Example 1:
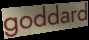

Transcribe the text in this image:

goddard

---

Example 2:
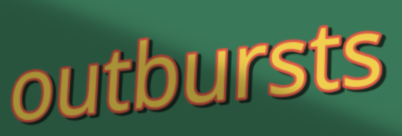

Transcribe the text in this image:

outbursts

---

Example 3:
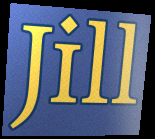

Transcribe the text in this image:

Jill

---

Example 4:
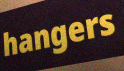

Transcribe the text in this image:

hangers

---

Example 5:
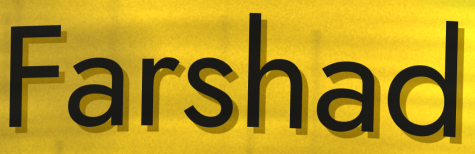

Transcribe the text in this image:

Farshad